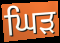
ਘਿੜ